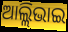
ଆଲ୍ଲିଭାଇ